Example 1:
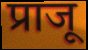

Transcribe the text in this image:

प्राजू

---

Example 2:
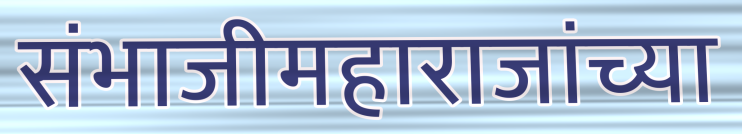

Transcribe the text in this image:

संभाजीमहाराजांच्या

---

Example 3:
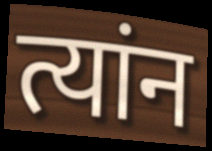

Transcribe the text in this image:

त्यांन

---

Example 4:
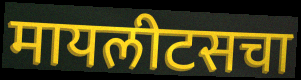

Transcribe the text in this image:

मायलीटसचा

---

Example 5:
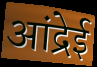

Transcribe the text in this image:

आंद्रेई